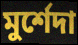
মুর্শেদা